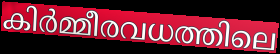
കിർമ്മീരവധത്തിലെ